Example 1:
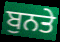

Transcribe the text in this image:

ਬੁਨਤੇ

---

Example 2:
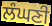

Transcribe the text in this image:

ਲੰਘਣੀ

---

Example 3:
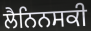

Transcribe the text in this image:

ਲੈਨਿਨਸਕੀ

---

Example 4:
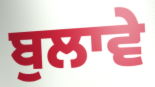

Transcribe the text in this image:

ਬੁਲਾਵੇ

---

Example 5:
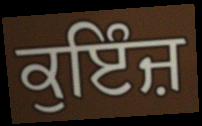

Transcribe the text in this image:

ਕੁਇੰਜ਼